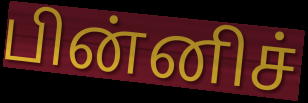
பின்னிச்